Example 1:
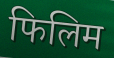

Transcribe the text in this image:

फिलिम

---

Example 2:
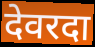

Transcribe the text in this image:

देवरदा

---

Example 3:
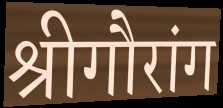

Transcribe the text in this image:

श्रीगौरांग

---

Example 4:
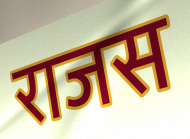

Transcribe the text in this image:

राजस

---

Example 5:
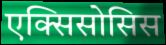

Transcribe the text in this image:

एक्सिसोसिस